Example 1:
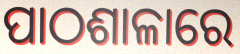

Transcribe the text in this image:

ପାଠଶାଳାରେ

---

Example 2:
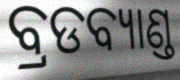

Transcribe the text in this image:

ବ୍ରଡବ୍ୟାଣ୍ଡ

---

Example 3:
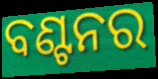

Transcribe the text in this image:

ବଣ୍ଟନର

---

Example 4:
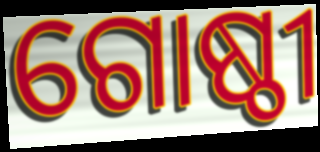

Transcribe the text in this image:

ଗୋଷ୍ଠୀ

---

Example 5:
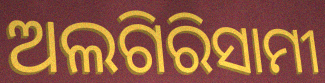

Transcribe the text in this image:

ଅଲଗିରିସାମୀ